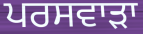
ਪਰਸਵਾੜਾ